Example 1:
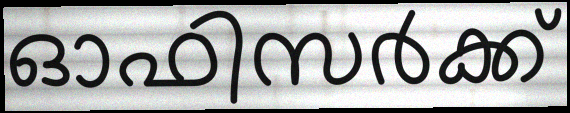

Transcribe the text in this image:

ഓഫിസർക്ക്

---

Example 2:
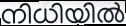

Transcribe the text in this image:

നിധിയിൽ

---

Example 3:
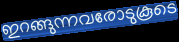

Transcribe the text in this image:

ഇറങ്ങുന്നവരോടുകൂടെ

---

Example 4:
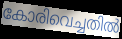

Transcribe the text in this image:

കോരിവെച്ചതിൽ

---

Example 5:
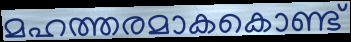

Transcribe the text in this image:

മഹത്തരമാകകൊണ്ട്